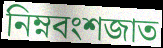
নিম্নবংশজাত